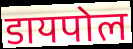
डायपोल